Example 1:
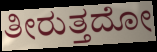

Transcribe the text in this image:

ತೀರುತ್ತದೋ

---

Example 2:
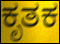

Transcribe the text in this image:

ಕೃತಕ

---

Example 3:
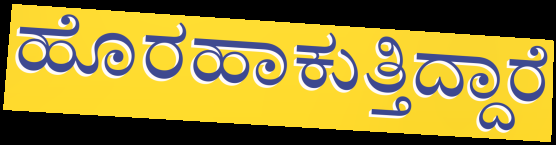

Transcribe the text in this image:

ಹೊರಹಾಕುತ್ತಿದ್ದಾರೆ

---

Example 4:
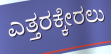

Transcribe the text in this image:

ಎತ್ತರಕ್ಕೇರಲು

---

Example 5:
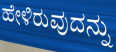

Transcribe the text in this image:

ಹೇಳಿರುವುದನ್ನು